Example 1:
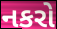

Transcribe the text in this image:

નકરો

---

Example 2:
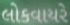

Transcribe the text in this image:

લોકવાયરે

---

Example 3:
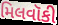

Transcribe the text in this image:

મિલવૉકી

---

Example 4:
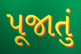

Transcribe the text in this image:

પૂજાતું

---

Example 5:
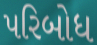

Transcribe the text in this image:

પરિબોધ